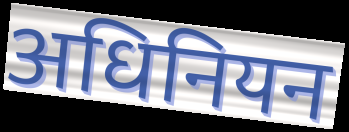
अधिनियन